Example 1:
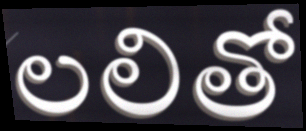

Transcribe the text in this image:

లలితో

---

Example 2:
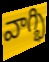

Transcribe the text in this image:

వాగ్భి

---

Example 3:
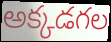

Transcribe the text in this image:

అక్కడగల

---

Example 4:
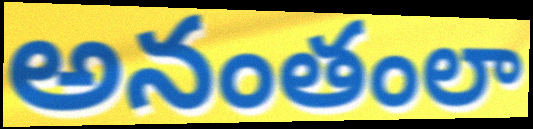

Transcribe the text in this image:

అనంతంలా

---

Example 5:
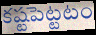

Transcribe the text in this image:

కష్టపెట్టటం